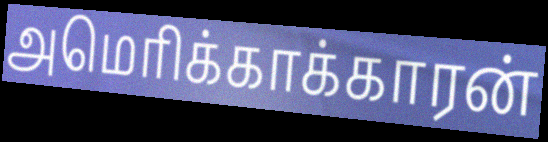
அமெரிக்காக்காரன்